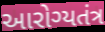
આરોગ્યતંત્ર